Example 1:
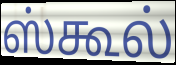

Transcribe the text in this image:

ஸ்கூல்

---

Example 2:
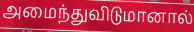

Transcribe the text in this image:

அமைந்துவிடுமானால்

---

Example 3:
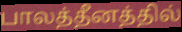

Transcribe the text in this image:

பாலத்தீனத்தில்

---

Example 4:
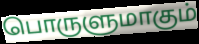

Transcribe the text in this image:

பொருளுமாகும்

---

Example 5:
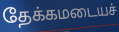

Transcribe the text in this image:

தேக்கமடையச்